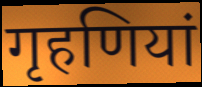
गृहणियां